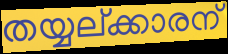
തയ്യല്ക്കാരന്